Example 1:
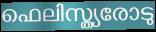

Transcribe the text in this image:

ഫെലിസ്ത്യരോടു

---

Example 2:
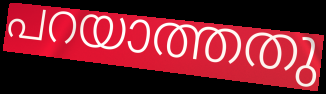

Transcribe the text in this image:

പറയാത്തതു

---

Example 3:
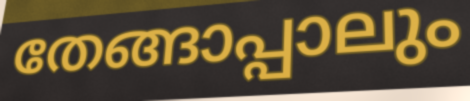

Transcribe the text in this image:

തേങ്ങാപ്പാലും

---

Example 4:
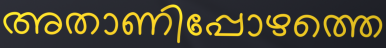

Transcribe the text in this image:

അതാണിപ്പോഴത്തെ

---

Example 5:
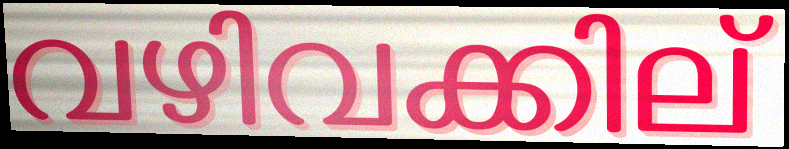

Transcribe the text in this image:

വഴിവക്കില്